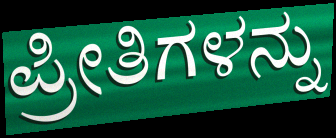
ಪ್ರೀತಿಗಳನ್ನು